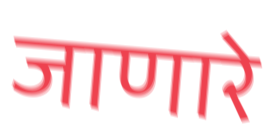
जाणारे